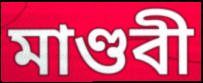
মাণ্ডবী